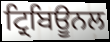
ਟ੍ਰਿਬਿਊਨਲ